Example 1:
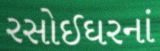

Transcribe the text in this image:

રસોઈઘરનાં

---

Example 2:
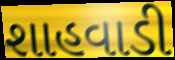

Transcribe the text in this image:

શાહવાડી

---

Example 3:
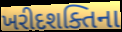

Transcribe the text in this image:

ખરીદશક્તિના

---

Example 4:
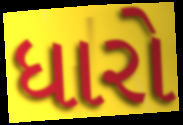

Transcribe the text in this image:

ધારો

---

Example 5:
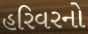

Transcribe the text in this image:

હરિવરનો